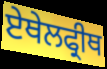
ਏਥੇਲਫ੍ਰੀਥ